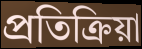
প্রতিক্রিয়া